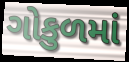
ગોકુળમાં